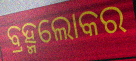
ବ୍ରହ୍ମଲୋକର